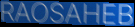
RAOSAHEB